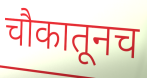
चौकातूनच